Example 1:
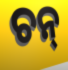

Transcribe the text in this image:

ଚନ୍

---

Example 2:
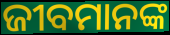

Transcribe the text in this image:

ଜୀବମାନଙ୍କ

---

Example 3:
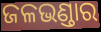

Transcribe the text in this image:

ଜଳଭଣ୍ଡାର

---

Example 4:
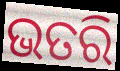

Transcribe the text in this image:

ଭତରି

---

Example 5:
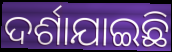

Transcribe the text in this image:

ଦର୍ଶାଯାଇଛି